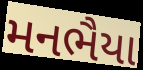
મનભૈયા